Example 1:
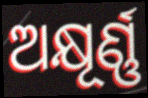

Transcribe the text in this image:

ଅକ୍ଷୂର୍ଣ୍ଣ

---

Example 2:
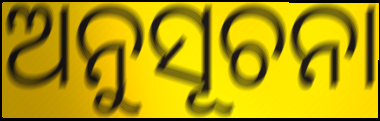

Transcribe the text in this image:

ଅନୁସୂଚନା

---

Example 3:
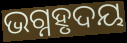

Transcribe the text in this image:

ଭଗ୍ନହୃଦୟ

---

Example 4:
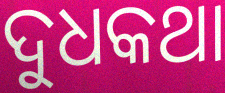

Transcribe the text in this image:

ଦୁଧକଥା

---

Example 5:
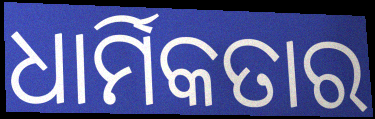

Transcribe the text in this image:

ଧାର୍ମିକତାର